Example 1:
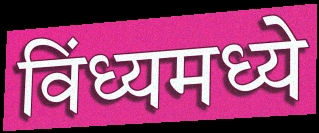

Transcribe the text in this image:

विंध्यमध्ये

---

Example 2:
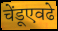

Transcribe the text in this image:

चेंडूएवढे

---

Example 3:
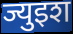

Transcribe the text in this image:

ज्युइश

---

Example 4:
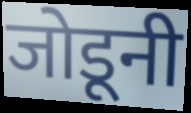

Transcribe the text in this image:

जोडूनी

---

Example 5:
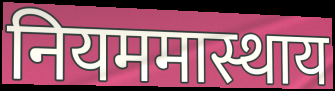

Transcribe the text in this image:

नियममास्थाय